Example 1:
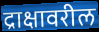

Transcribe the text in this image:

द्राक्षावरील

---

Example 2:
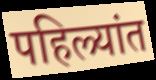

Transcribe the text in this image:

पहिल्यांत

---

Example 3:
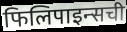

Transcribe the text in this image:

फिलिपाइन्सची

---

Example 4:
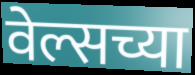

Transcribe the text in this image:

वेल्सच्या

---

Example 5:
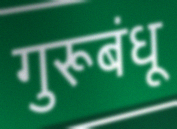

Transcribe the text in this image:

गुरूबंधू